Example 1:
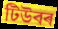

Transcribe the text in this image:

টিউবৰ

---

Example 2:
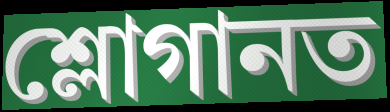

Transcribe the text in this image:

শ্লোগানত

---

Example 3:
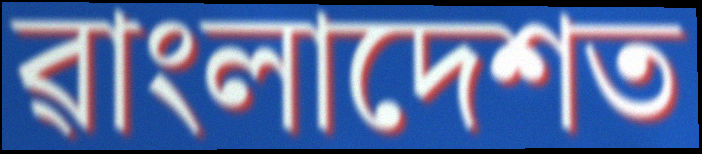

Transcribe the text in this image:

ৱাংলাদেশত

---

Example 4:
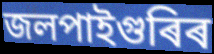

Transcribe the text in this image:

জলপাইগুৰিৰ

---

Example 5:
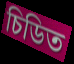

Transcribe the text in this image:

চিডিত